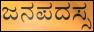
ಜನಪದಸ್ಸ